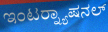
ಇಂಟರ್‍ನ್ಯಾಷನಲ್